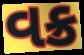
વક્ર